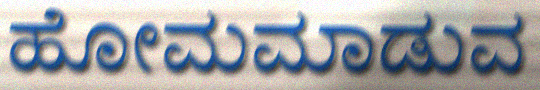
ಹೋಮಮಾಡುವ